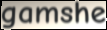
gamshe